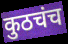
कुठचंच